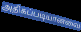
அதிகப்படியானவை